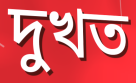
দুখত